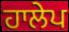
ਹਾਲੇਪ